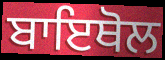
ਬਾਇਥੋਲ